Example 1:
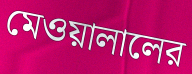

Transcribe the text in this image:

মেওয়ালালের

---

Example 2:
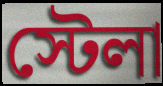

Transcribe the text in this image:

স্টেলা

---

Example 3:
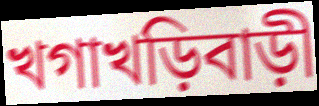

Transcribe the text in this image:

খগাখড়িবাড়ী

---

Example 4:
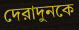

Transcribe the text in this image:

দেরাদুনকে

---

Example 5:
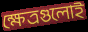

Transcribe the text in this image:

ক্ষেত্রগুলোই